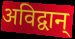
अविद्वान्